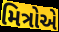
મિત્રોએ